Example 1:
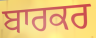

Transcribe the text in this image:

ਬਾਰਕਰ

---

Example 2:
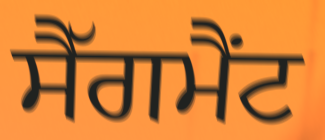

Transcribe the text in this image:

ਸੈੱਗਮੈਂਟ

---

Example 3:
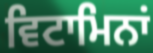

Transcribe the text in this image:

ਵਿਟਾਮਿਨਾਂ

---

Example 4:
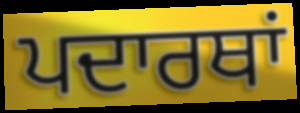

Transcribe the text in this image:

ਪਦਾਰਥਾਂ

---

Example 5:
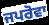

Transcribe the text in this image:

ਜਪਰੋਵਾ